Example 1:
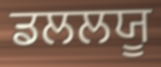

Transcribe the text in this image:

ਡਲਲਯੂ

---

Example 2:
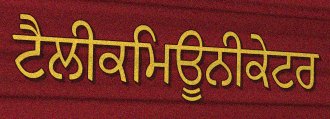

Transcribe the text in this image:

ਟੈਲੀਕਮਿਊਨੀਕੇਟਰ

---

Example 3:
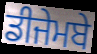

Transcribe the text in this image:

ਡੀਜੇਮਬੇ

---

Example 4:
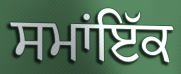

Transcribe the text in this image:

ਸਮਾਂਇੱਕ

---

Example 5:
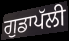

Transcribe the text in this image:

ਗੁਡਾਪੱਲੀ